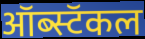
ऑब्स्टॅकल